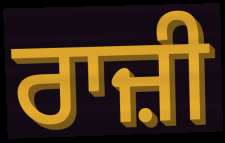
ਰਾਜ਼ੀ